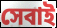
সেবাই